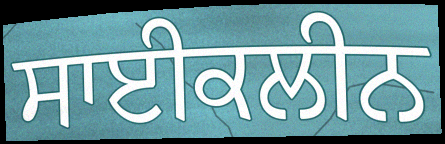
ਸਾਈਕਲੀਨ